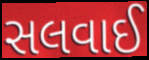
સલવાઈ